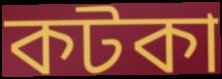
কটকা